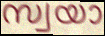
സ്വയാ